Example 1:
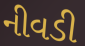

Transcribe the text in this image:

નીવડી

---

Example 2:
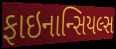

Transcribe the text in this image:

ફાઇનાન્સિયલ્સ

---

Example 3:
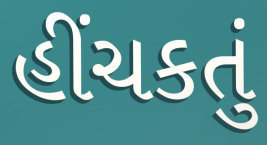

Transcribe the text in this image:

હીંચકતું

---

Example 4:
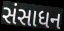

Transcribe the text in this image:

સંસાધન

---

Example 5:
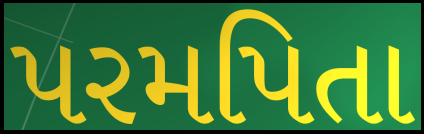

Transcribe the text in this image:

પરમપિતા